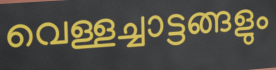
വെള്ളച്ചാട്ടങ്ങളും